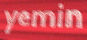
yemin